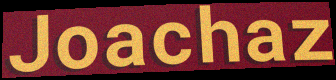
Joachaz